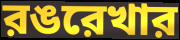
রঙরেখার